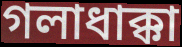
গলাধাক্কা